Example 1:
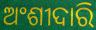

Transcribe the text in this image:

ଅଂଶୀଦାରି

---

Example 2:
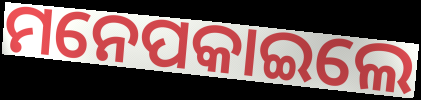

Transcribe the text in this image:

ମନେପକାଇଲେ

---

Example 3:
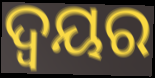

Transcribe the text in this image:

ଦ୍ଵୟର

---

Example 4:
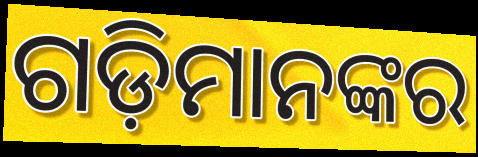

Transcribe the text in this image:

ଗଡ଼ିମାନଙ୍କର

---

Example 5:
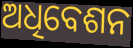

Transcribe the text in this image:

ଅଧିବେଶନ